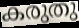
കരുതു